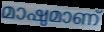
മാഷുമാണ്